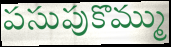
పసుపుకొమ్ము